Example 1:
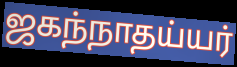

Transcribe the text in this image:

ஜகந்நாதய்யர்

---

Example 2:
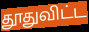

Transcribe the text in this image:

தூதுவிட்ட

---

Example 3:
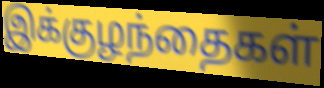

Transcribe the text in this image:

இக்குழந்தைகள்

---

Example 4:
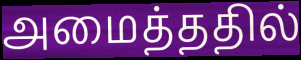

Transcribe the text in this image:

அமைத்ததில்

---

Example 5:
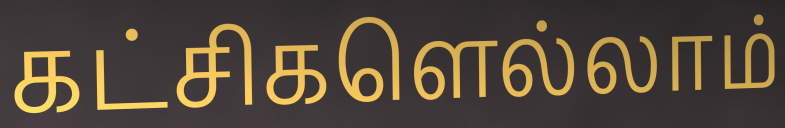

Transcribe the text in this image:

கட்சிகளெல்லாம்